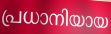
പ്രധാനിയായ